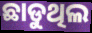
ଛାଡୁଥିଲ